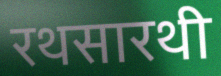
रथसारथी